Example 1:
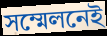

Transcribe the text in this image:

সম্মেলনেই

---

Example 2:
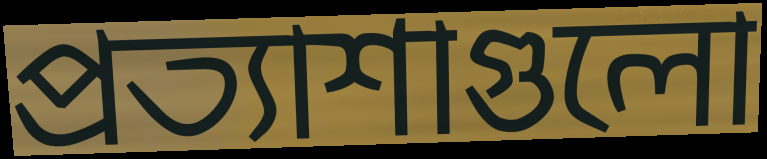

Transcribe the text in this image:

প্রত্যাশাগুলো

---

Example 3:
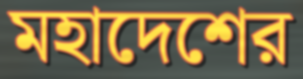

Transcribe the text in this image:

মহাদেশের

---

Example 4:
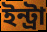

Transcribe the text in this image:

ইন্ট্রা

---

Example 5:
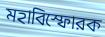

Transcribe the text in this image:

মহাবিস্ফোরক